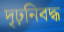
দৃঢ়নিবদ্ধ